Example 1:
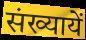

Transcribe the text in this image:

संख्यायें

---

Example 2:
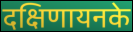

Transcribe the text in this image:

दक्षिणायनके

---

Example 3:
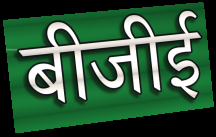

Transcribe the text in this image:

बीजीई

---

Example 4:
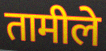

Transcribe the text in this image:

तामीले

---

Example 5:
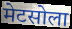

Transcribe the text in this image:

मेटसोला